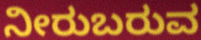
ನೀರುಬರುವ